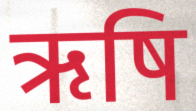
ॠषि